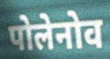
पोलेनोव